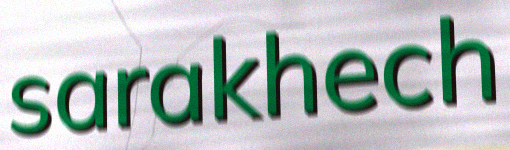
sarakhech